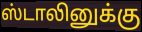
ஸ்டாலினுக்கு